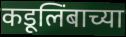
कडूलिंबाच्या